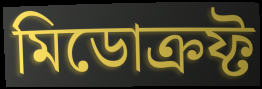
মিডোক্রফ্ট